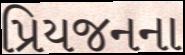
પ્રિયજનના